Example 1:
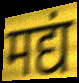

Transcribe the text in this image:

मद्यं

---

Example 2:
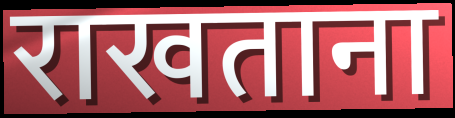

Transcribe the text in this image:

राखताना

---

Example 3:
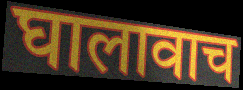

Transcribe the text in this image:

घालावाच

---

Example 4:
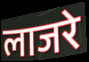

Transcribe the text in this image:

लाजरे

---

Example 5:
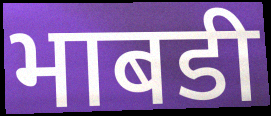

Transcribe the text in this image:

भाबडी